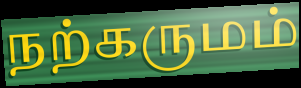
நற்கருமம்